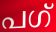
പഗ്